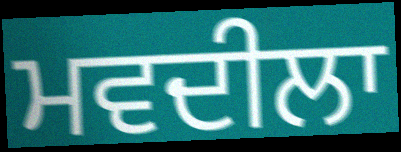
ਮਵਦੀਲਾ